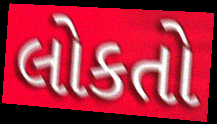
લોકતો